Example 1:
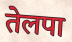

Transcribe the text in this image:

तेलपा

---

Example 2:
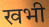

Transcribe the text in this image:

खभी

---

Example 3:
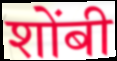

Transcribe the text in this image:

शोंबी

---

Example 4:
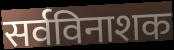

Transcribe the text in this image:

सर्वविनाशक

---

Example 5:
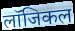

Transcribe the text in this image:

लॉजिकल